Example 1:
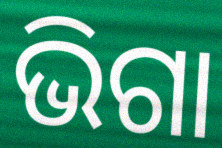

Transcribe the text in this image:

ଭିଗା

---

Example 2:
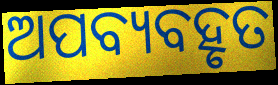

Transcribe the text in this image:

ଅପବ୍ୟବହୃତ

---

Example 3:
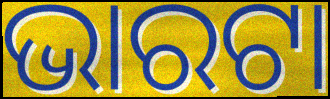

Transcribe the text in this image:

ଭାରଟା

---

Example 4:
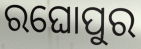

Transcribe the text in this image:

ରଘୋପୁର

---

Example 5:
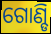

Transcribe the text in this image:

ଗୋଣ୍ଡି